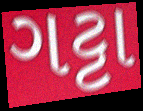
ગટ્ટા